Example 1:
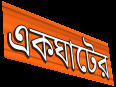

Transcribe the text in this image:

একঘাটের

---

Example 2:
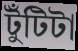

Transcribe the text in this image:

টুঁটিটা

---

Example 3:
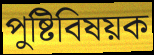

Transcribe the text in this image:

পুষ্টিবিষয়ক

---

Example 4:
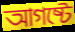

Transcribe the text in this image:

আগষ্টে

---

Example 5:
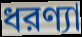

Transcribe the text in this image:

ধরণ্যা